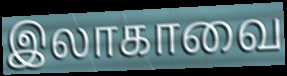
இலாகாவை